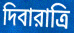
দিবারাত্রি